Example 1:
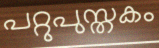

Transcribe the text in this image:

പറ്റുപുസ്തകം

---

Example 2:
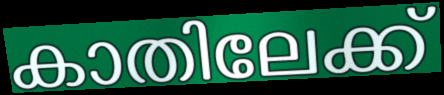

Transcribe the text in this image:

കാതിലേക്ക്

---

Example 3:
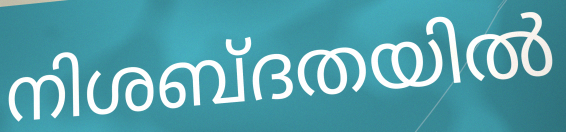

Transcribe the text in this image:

നിശബ്ദതയിൽ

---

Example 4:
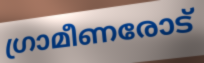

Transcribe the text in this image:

ഗ്രാമീണരോട്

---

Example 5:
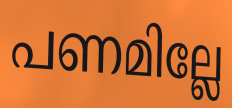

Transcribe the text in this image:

പണമില്ലേ